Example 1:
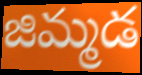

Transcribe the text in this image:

జిమ్మడ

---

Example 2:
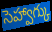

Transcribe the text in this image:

సెహ్వాగ్కు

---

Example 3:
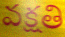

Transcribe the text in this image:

వక్షతి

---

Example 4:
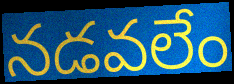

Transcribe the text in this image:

నడవలేం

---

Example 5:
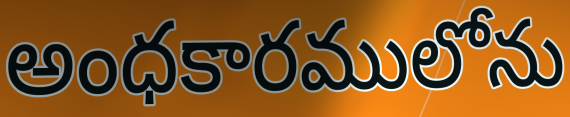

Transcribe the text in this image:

అంధకారములోను